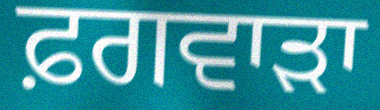
ਫ਼ਗਵਾੜਾ